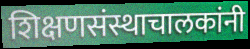
शिक्षणसंस्थाचालकांनी